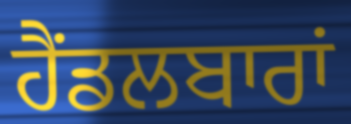
ਹੈਂਡਲਬਾਰਾਂ